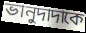
ভানুদাদাকে